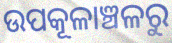
ଉପକୂଳାଞ୍ଚଳରୁ